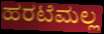
ಹರಟೆಮಲ್ಲ